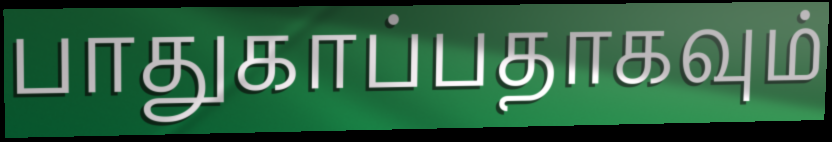
பாதுகாப்பதாகவும்